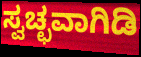
ಸ್ವಚ್ಛವಾಗಿಡಿ